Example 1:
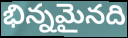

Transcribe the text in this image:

భిన్నమైనది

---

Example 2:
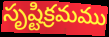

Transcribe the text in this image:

సృష్టిక్రమము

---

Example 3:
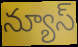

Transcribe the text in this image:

న్యూస్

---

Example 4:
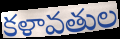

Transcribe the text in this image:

కళావతుల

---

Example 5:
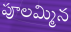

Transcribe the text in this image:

పూలమ్మిన